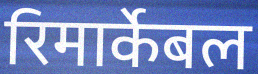
रिमार्केबल